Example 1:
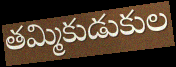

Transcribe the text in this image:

తమ్మికుడుకుల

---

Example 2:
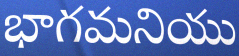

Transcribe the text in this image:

భాగమనియు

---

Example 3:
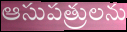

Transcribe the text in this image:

ఆసుపత్రులను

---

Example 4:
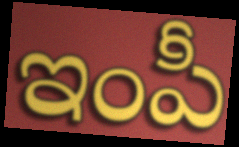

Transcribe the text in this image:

ఇంపీ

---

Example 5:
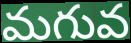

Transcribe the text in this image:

మగువ